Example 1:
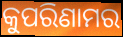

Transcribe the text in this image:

କୁପରିଣାମର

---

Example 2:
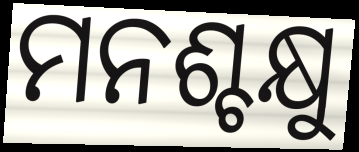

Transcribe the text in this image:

ମନଶ୍ଚକ୍ଷୁ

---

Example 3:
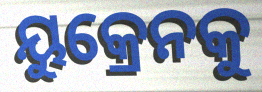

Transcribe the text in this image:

ୟୁକ୍ରେନକୁ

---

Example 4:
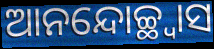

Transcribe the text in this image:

ଆନନ୍ଦୋଚ୍ଛ୍ୱାସ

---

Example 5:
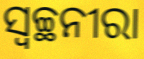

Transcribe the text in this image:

ସ୍ବଚ୍ଛନୀରା